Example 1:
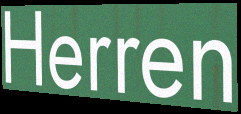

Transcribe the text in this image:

Herren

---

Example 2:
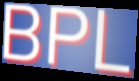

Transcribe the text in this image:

BPL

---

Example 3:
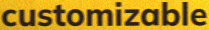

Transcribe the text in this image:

customizable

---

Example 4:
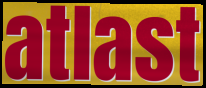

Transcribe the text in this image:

atlast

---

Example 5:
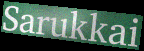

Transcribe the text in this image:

Sarukkai